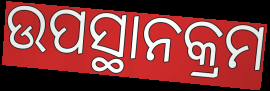
ଉପସ୍ଥାନକ୍ରମ